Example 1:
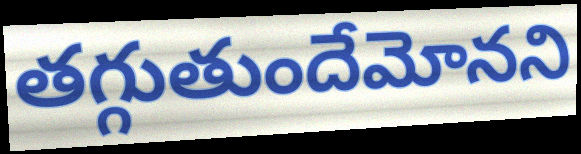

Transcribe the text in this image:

తగ్గుతుందేమోనని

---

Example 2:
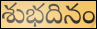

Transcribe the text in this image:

శుభదినం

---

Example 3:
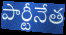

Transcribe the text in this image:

పార్టీనేత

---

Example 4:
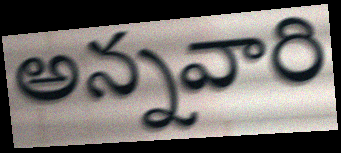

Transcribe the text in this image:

అన్నవారి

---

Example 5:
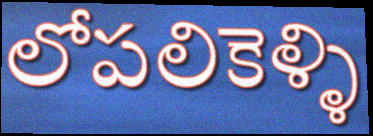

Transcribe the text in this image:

లోపలికెళ్ళి